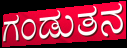
ಗಂಡುತನ